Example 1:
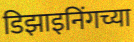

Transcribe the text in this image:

डिझाइनिंगच्या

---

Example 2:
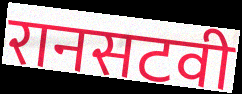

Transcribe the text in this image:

रानसटवी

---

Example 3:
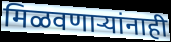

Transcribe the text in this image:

मिळवणाऱ्यांनाही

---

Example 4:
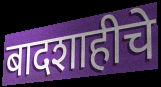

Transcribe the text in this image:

बादशाहीचे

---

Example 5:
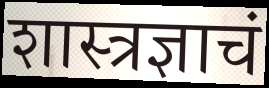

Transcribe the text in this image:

शास्त्रज्ञाचं